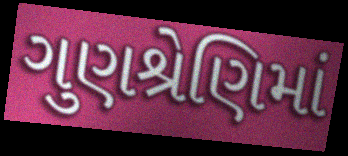
ગુણશ્રેણિમાં